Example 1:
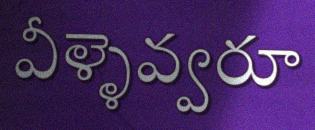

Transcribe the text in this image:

వీళ్ళెవ్వరూ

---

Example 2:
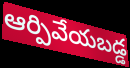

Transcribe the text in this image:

ఆర్పివేయబడ్డ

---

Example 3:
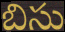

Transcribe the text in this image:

బిసు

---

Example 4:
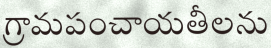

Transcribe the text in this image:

గ్రామపంచాయతీలను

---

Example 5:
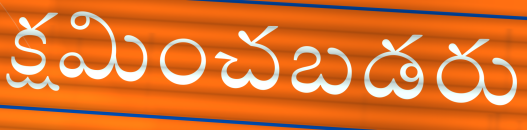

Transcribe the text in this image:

క్షమించబడరు